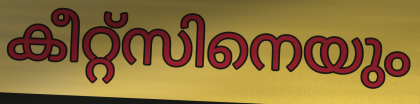
കീറ്റ്സിനെയും